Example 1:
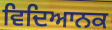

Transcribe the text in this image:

ਵਿਦਿਆਨਕ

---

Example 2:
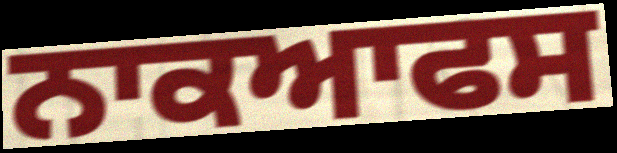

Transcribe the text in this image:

ਨਾਕਆਫਸ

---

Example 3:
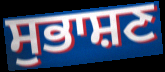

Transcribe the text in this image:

ਸੁਭਾਸ਼ਣ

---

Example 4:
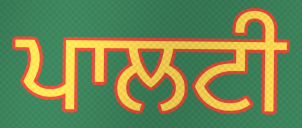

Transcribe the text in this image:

ਪਾਲਟੀ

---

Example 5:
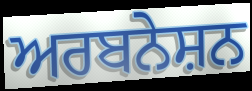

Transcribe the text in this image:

ਅਰਬਨੇਸ਼ਨ